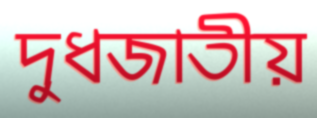
দুধজাতীয়